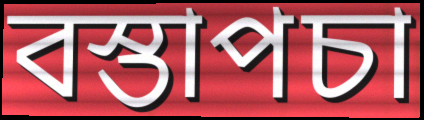
বস্তাপচা